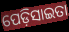
ପେଡ଼ିସାଇତା